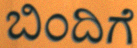
ಬಿಂದಿಗೆ